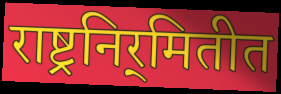
राष्ट्रनिर्मितीत